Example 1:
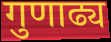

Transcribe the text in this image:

गुणाढ्य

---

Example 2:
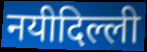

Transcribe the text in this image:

नयीदिल्ली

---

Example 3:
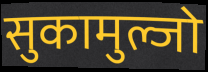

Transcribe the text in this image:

सुकामुल्जो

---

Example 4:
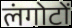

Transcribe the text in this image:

लंगोटों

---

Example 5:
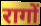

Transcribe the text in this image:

रागों